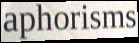
aphorisms